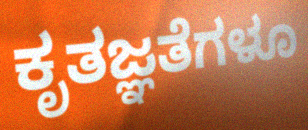
ಕೃತಜ್ಞತೆಗಳೂ